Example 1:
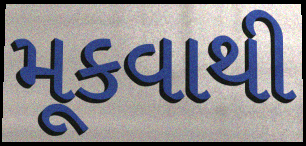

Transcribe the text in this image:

મૂકવાથી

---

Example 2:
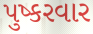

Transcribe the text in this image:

પુષ્કરવાર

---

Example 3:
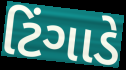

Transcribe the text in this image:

ટિંગાડે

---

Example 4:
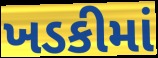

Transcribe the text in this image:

ખડકીમાં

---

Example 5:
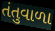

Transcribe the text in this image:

તંતુવાળા